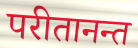
परीतानन्त